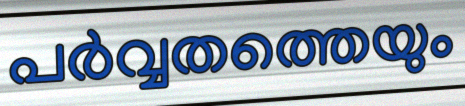
പർവ്വതത്തെയും